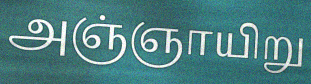
அஞ்ஞாயிறு